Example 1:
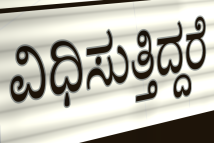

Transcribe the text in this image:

ವಿಧಿಸುತ್ತಿದ್ದರೆ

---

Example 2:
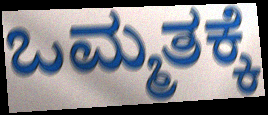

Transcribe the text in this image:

ಒಮ್ಮತಕ್ಕೆ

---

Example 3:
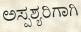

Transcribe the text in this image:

ಅಸ್ಪಶ್ಯರಿಗಾಗಿ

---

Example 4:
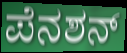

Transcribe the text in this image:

ಪೆನಶನ್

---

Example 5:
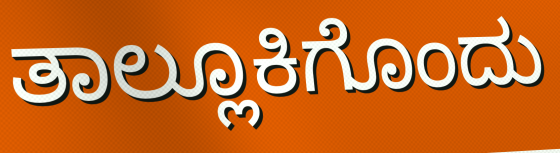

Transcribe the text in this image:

ತಾಲ್ಲೂಕಿಗೊಂದು